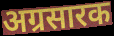
अग्रसारक